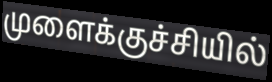
முளைக்குச்சியில்